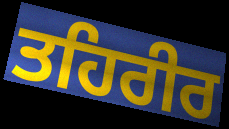
ਤਹਿਰੀਰ